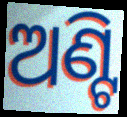
ଅଣ୍ଟି